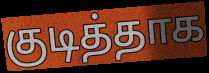
குடித்தாக